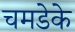
चमडेके